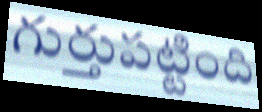
గుర్తుపట్టింది